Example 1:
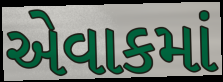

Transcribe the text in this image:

એવાકમાં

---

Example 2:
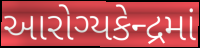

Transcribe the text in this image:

આરોગ્યકેન્દ્રમાં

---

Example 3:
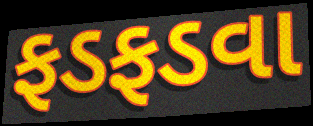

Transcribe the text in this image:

ફડફડવા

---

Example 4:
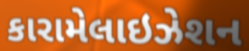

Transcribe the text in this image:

કારામેલાઇઝેશન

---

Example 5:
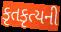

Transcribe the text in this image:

કૃતકૃત્યની